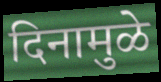
दिनामुळे